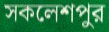
সকলেশপুর